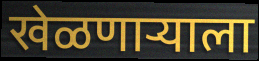
खेळणाऱ्याला